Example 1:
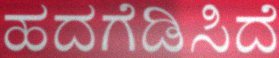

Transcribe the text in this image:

ಹದಗೆಡಿಸಿದೆ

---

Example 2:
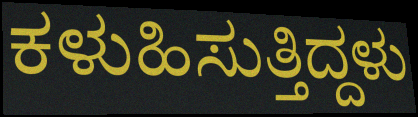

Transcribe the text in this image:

ಕಳುಹಿಸುತ್ತಿದ್ದಳು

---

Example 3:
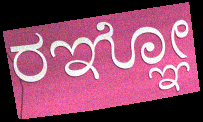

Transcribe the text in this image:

ರಞ್ಞೋ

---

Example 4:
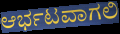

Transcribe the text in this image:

ಆರ್ಭಟವಾಗಲಿ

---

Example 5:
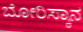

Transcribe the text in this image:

ಬೋರಿಸ್ಕಾನ